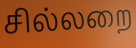
சில்லறை